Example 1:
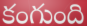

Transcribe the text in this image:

కంగుంది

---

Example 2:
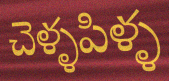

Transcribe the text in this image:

చెళ్ళపిళ్ళ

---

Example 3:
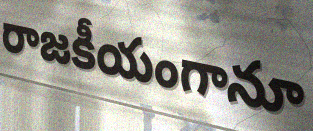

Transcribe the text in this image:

రాజకీయంగానూ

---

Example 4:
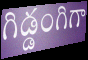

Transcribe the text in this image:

గిడ్డంగిగా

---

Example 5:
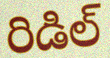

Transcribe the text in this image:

రిడిల్